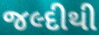
જલ્દીથી